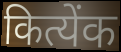
कित्येंक